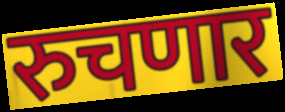
रुचणार